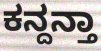
ಕನ್ದನ್ತಾ